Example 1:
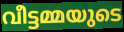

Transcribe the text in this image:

വീട്ടമ്മയുടെ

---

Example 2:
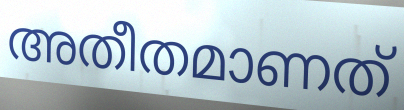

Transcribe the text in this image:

അതീതമാണത്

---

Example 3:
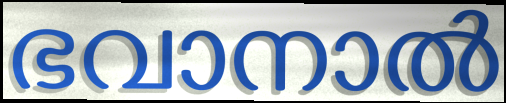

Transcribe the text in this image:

ഭവാനാൽ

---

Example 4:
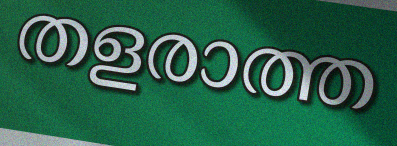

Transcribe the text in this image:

തളരാത്ത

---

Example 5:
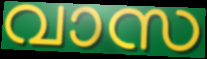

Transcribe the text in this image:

വാസ